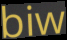
biw